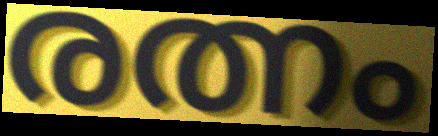
രത്നം